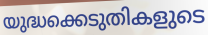
യുദ്ധക്കെടുതികളുടെ